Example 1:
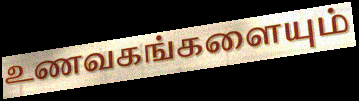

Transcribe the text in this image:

உணவகங்களையும்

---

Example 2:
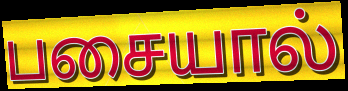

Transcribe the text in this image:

பசையால்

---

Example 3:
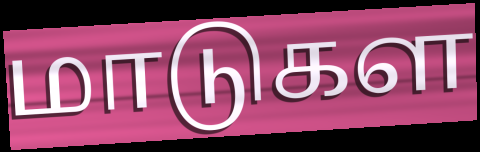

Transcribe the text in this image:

மாடுகள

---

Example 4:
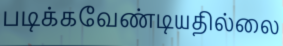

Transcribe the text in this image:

படிக்கவேண்டியதில்லை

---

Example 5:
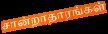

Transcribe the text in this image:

சான்றாதாரங்கள்